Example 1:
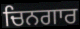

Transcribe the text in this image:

ਚਿਨਗਾਰ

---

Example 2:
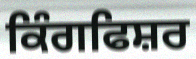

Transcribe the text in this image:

ਕਿੰਗਫਿਸ਼ਰ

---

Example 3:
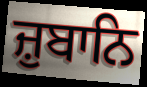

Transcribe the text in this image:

ਜ਼ੁਬਾਨਿ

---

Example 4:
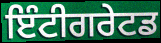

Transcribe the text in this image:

ਇੰਟੀਗਰੇਟਡ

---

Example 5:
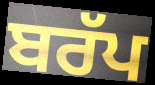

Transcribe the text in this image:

ਬਰੱਪ